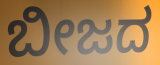
ಬೀಜದ